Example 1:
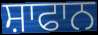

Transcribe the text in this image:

ਸ਼ਾਫਾਨ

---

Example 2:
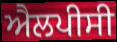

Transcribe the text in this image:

ਐਲਪੀਸੀ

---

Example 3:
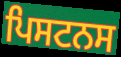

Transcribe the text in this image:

ਪਿਸਟਨਸ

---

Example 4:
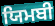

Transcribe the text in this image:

ਯਿਮਬੀ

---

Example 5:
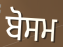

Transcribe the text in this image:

ਬੋਸਮ